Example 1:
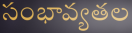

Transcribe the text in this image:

సంభావ్యతల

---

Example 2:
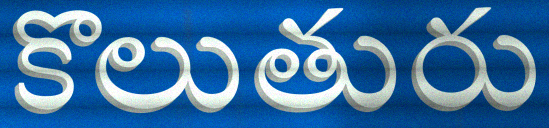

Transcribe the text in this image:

కొలుతురు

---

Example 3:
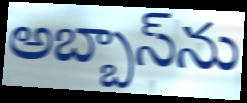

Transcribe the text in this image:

అబ్బాస్‌ను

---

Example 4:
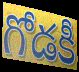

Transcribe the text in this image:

గోడకీ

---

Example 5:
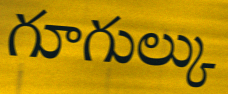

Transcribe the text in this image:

గూగుల్కు